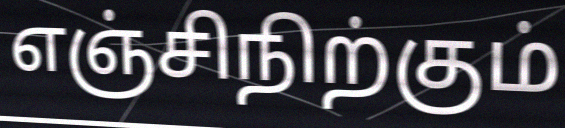
எஞ்சிநிற்கும்